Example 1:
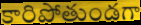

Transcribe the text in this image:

కారిపోతుండగా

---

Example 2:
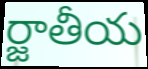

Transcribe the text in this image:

ర్జాతీయ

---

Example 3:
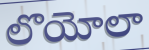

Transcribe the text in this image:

లొయోలా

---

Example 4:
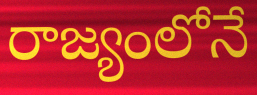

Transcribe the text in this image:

రాజ్యంలోనే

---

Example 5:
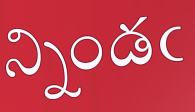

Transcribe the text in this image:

న్నిండఁ